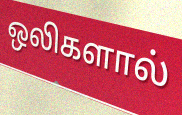
ஒலிகளால்